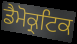
ਡੈਮੋਕ੍ਰਟਿਕ